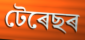
টেৰেছৰ